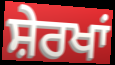
ਸ਼ੇਰਖਾਂ